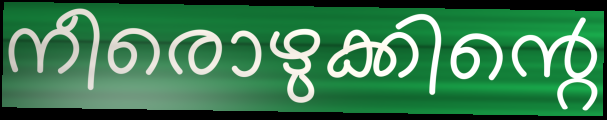
നീരൊഴുക്കിന്റെ